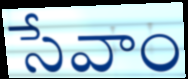
సేవాం